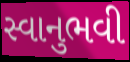
સ્વાનુભવી